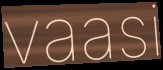
vaasi